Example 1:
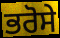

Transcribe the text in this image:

ਭਰੋਸੇ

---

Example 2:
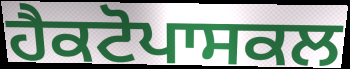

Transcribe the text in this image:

ਹੈਕਟੋਪਾਸਕਲ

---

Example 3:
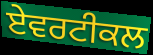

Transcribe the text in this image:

ਏਵਰਟੀਕਲ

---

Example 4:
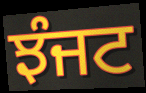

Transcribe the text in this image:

ਝੰਜਟ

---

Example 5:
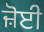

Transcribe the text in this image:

ਜ਼ੋਈ